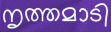
നൃത്തമാടി